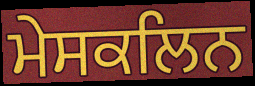
ਮੇਸਕਲਿਨ